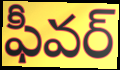
ఫీవర్